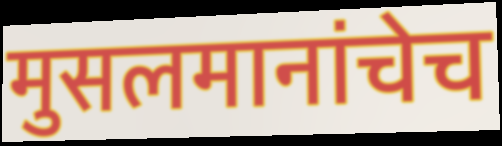
मुसलमानांचेच